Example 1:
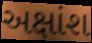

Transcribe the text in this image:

અક્ષાંશ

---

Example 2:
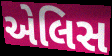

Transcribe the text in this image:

એલિસ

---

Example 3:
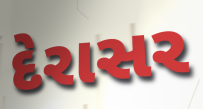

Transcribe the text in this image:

દેરાસર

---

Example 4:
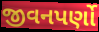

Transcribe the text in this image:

જીવનપર્ણો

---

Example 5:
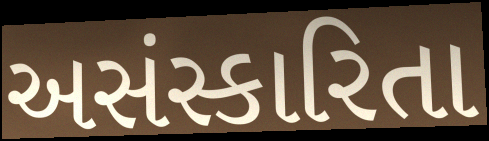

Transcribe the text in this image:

અસંસ્કારિતા